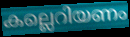
കല്ലെറിയണം